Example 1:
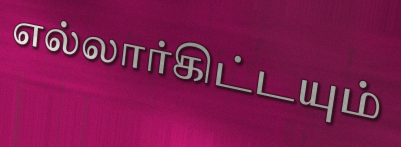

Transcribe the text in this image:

எல்லார்கிட்டயும்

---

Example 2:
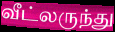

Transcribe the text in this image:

வீட்லருந்து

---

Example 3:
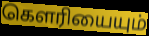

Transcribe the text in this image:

கௌரியையும்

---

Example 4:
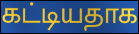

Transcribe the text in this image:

கட்டியதாக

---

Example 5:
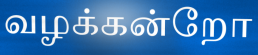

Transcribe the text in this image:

வழக்கன்றோ